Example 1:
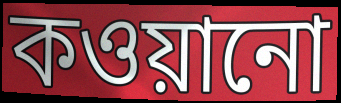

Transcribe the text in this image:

কওয়ানো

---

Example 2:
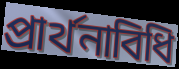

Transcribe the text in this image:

প্রার্থনাবিধি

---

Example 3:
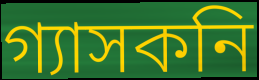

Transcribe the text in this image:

গ্যাসকনি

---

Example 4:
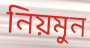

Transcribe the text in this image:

নিয়মুন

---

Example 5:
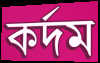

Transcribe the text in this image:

কর্দম